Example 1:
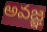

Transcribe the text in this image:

అవజ్ఞ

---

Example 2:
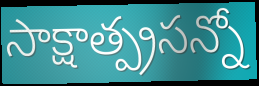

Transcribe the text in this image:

సాక్షాత్ప్రసన్నో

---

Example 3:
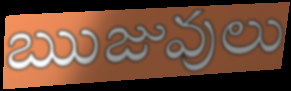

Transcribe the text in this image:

ఋజువులు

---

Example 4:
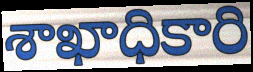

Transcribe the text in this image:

శాఖాధికారి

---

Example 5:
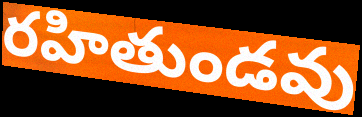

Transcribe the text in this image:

రహితుండవు